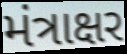
મંત્રાક્ષર